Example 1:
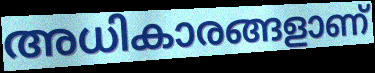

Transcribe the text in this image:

അധികാരങ്ങളാണ്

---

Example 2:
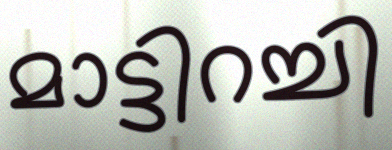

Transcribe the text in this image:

മാട്ടിറച്ചി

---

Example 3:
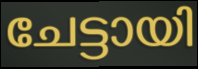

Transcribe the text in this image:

ചേട്ടായി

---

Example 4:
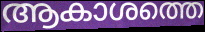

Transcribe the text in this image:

ആകാശത്തെ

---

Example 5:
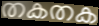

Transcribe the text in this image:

തകതക